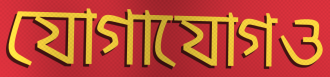
যোগাযোগও